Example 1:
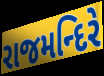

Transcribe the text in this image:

રાજમન્દિરે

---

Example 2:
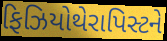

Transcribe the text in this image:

ફિઝિયોથેરાપિસ્ટને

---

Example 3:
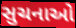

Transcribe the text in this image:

સુચનાઓ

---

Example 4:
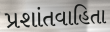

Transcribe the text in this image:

પ્રશાંતવાહિતા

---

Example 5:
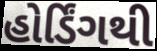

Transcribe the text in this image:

હોર્ડિંગથી